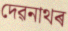
দেৱনাথৰ